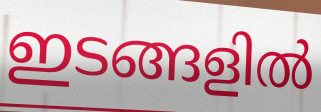
ഇടങ്ങളിൽ